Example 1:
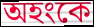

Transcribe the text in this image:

অহংকে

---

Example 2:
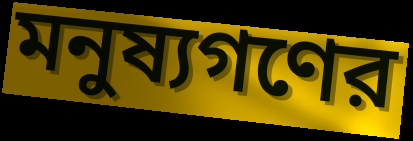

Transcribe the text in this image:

মনুষ্যগণের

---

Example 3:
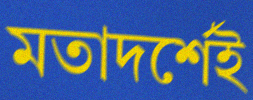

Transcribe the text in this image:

মতাদর্শেই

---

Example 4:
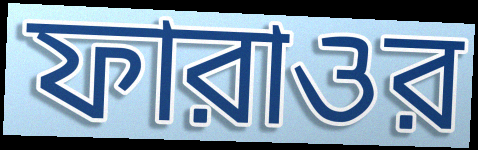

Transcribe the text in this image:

ফারাওর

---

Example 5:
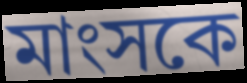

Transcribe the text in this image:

মাংসকে